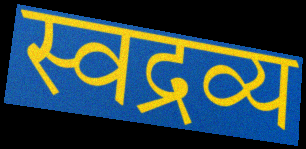
स्वद्रव्य